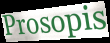
Prosopis